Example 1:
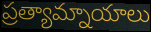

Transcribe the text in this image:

ప్రత్యామ్నాయాలు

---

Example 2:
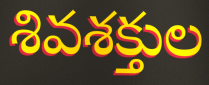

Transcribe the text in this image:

శివశక్తుల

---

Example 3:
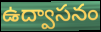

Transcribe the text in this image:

ఉద్వాసనం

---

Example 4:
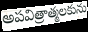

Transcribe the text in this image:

అపవిత్రాత్మలకును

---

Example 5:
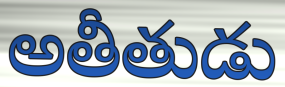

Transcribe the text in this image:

అతీతుడు